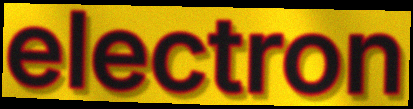
electron